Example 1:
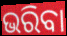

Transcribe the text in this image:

ଭରିବା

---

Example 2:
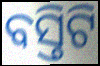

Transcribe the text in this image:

ବସ୍ତିଟି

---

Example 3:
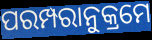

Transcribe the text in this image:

ପରମ୍ପରାନୁକ୍ରମେ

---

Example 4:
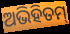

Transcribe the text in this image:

ଅଭିହିତମ୍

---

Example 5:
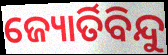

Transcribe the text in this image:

ଜ୍ୟୋର୍ତିବିନ୍ଦୁ